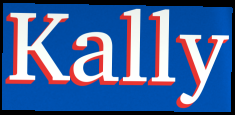
Kally